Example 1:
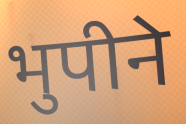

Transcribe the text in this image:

भुपीने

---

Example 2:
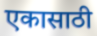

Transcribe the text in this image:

एकासाठी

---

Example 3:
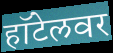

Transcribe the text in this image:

हॉटेलवर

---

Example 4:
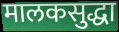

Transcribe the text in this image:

मालकसुद्धा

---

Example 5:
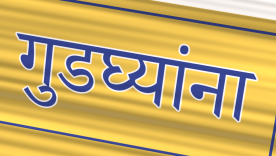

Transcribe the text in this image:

गुडघ्यांना